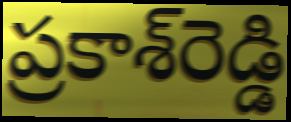
ప్రకాశ్‌రెడ్డి